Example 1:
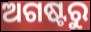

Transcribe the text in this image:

ଅଗଷ୍ଟରୁ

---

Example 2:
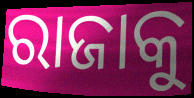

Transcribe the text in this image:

ରାଜାକୁ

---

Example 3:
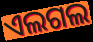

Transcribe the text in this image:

ଏଲଗଲ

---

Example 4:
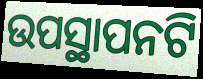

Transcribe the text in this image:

ଉପସ୍ଥାପନଟି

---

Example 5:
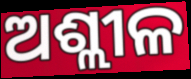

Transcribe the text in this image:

ଅଶ୍ଲୀଳ